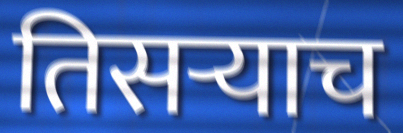
तिसऱ्याच